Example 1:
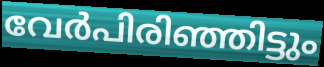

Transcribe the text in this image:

വേർപിരിഞ്ഞിട്ടും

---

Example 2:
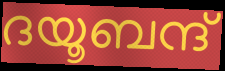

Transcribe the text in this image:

ദയൂബന്ദ്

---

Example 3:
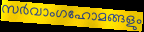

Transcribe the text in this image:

സർവാംഗഹോമങ്ങളും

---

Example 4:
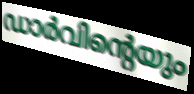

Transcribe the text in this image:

ഡാർവിന്റെയും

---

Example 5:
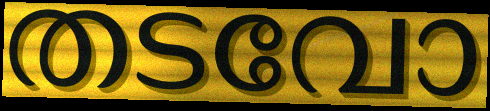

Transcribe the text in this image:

തടവോ